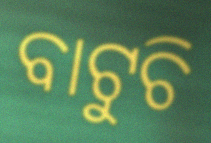
ବାଟୁଚି